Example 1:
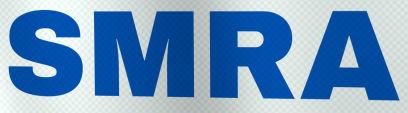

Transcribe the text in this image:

SMRA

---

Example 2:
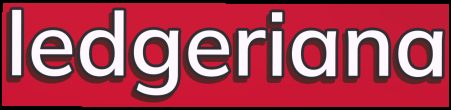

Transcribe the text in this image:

ledgeriana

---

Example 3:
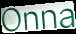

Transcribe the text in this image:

Onna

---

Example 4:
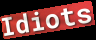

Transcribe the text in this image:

Idiots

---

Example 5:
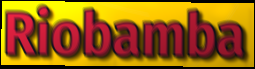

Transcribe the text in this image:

Riobamba